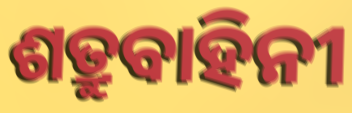
ଶତ୍ରୁବାହିନୀ